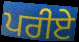
ਪਰੀਏ